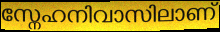
സ്നേഹനിവാസിലാണ്